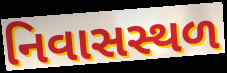
નિવાસસ્થળ